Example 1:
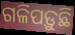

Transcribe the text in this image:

ଗଳିପଡ଼ୁଛି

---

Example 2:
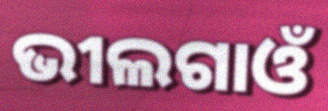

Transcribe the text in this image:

ଭୀଲଗାଓଁ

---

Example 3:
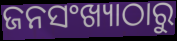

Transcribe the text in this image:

ଜନସଂଖ୍ୟାଠାରୁ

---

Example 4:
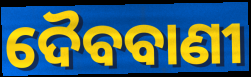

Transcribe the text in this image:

ଦୈବବାଣୀ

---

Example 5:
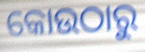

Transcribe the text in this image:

କୋଉଠାରୁ